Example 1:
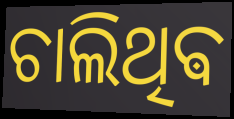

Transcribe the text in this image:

ଚାଲିଥିଵ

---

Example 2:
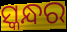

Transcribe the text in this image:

ସ୍କନ୍ଧର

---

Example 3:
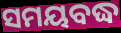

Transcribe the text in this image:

ସମୟବଦ୍ଧ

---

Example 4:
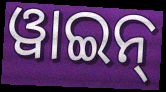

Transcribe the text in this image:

ୱାଇନ୍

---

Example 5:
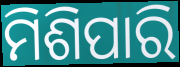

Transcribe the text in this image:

ମିଶିପାରି